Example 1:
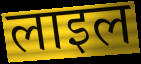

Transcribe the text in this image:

लाइल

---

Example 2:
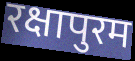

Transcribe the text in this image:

रक्षापुरम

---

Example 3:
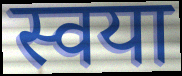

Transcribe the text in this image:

स्वया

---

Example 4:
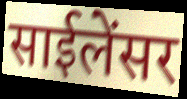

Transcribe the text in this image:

साईलेंसर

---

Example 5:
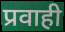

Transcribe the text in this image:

प्रवाही